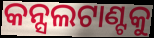
କନ୍ସଲଟାଣ୍ଟକୁ